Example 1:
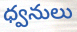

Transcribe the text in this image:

ధ్వనులు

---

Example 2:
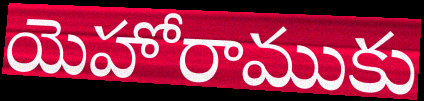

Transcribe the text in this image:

యెహోరాముకు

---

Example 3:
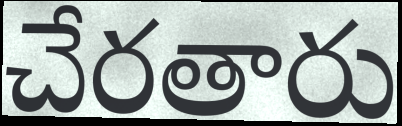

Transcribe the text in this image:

చేరతారు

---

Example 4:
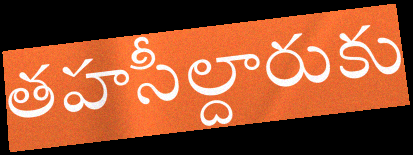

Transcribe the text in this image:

తహసీల్దారుకు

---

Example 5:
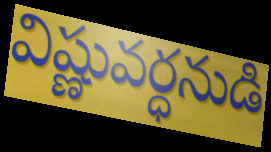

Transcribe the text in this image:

విష్ణువర్ధనుడి